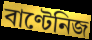
বাণ্টেনিজ